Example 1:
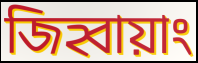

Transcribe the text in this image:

জিহ্বায়াং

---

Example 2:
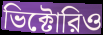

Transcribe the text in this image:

ভিক্টোরিও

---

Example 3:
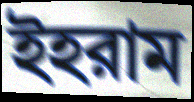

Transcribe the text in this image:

ইহরাম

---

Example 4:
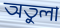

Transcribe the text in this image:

অতুলা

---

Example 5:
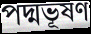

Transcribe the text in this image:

পদ্মভূষণ